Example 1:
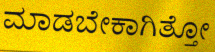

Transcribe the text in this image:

ಮಾಡಬೇಕಾಗಿತ್ತೋ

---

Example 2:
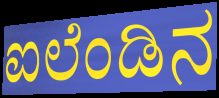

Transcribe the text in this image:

ಐಲೆಂಡಿನ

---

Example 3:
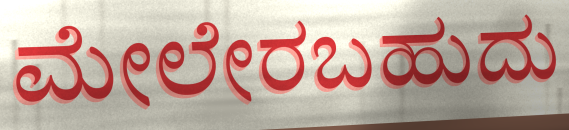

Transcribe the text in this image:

ಮೇಲೇರಬಹುದು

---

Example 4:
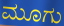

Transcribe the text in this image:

ಮೂಗು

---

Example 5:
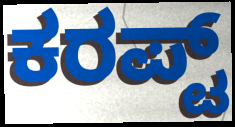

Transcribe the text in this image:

ಕರಪ್ಟ್